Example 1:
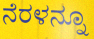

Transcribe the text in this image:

ನೆರಳನ್ನೂ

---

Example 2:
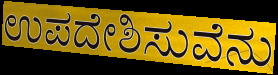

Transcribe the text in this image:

ಉಪದೇಶಿಸುವೆನು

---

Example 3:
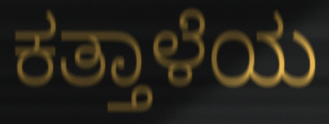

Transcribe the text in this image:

ಕತ್ತಾಳೆಯ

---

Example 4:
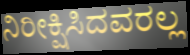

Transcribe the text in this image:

ನಿರೀಕ್ಷಿಸಿದವರಲ್ಲ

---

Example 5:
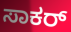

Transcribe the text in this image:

ಸಾಕರ್